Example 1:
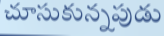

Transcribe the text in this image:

చూసుకున్నపుడు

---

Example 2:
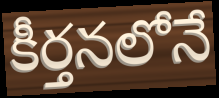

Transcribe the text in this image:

కీర్తనలోనే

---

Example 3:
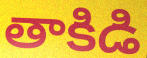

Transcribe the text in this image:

తాకిడి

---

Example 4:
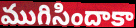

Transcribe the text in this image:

ముగిసిందాకా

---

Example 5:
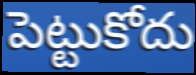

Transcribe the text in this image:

పెట్టుకోదు